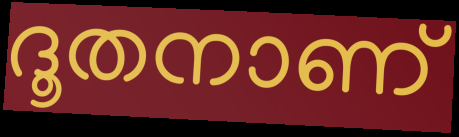
ദൂതനാണ്